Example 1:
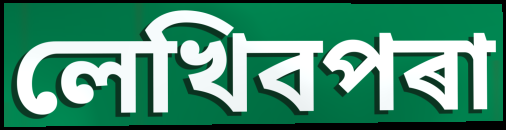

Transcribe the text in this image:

লেখিবপৰা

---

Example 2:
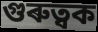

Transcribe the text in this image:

গুৰুত্বক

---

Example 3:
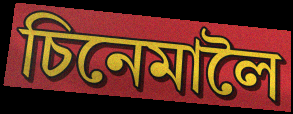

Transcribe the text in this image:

চিনেমালৈ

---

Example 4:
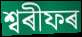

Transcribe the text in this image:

শ্বৰীফৰ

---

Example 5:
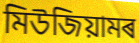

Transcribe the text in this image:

মিউজিয়ামৰ